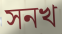
সনখ